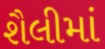
શૈલીમાં